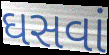
ઘસવાં